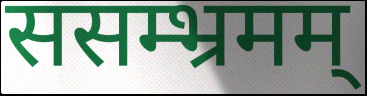
ससम्भ्रमम्